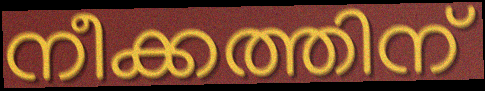
നീക്കത്തിന്